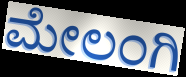
ಮೇಲಂಗಿ